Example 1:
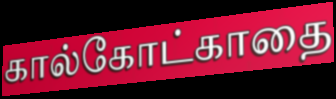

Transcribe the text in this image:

கால்கோட்காதை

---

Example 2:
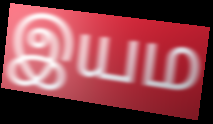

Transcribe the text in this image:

இயம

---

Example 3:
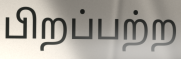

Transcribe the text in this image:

பிறப்பற்ற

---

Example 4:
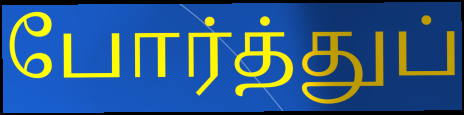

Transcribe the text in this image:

போர்த்துப்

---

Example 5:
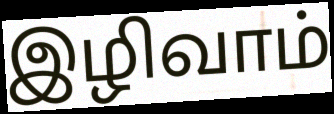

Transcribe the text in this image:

இழிவாம்